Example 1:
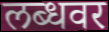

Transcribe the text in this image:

लब्धवर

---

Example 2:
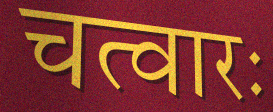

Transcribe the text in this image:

चत्वारः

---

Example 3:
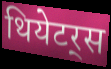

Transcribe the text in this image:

थियेटर्स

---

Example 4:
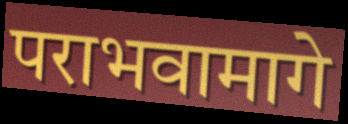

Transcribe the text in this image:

पराभवामागे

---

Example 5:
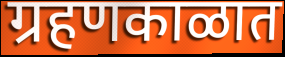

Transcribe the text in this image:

ग्रहणकाळात